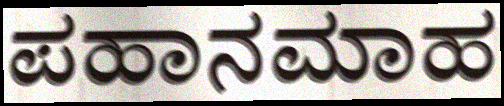
ಪಹಾನಮಾಹ